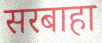
सरबाहा